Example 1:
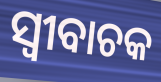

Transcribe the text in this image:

ସ୍ବୀବାଚକ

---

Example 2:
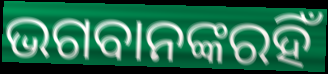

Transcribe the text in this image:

ଭଗବାନଙ୍କରହିଁ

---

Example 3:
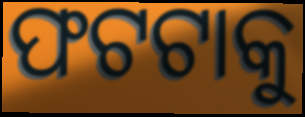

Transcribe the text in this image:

ଫଟଟାକୁ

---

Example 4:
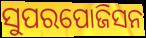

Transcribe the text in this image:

ସୁପରପୋଜିସନ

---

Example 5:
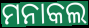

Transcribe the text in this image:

ମନାକଲ